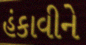
હંકાવીને